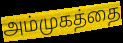
அம்முகத்தை